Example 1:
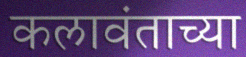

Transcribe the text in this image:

कलावंताच्या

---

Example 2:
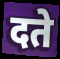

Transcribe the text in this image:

दते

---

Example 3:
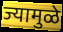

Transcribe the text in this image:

ज्यामुळे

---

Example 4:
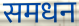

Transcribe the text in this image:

समधन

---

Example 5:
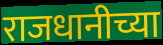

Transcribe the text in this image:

राजधानीच्या